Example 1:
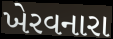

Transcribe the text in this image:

ખેરવનારા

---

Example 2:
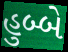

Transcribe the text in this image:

હુબ્બે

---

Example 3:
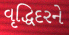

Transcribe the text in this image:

વૃદ્ધિદરને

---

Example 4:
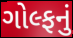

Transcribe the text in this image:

ગોલ્ફનું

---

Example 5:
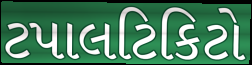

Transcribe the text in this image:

ટપાલટિકિટો